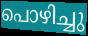
പൊഴിച്ചു